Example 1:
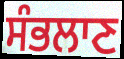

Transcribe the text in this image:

ਸੰਭਲਾਣ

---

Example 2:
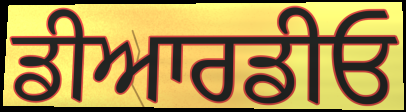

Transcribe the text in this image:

ਡੀਆਰਡੀਓ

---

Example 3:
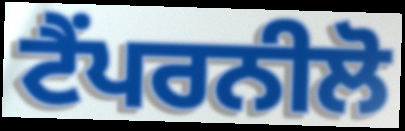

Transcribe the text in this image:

ਟੈਂਪਰਨੀਲੋ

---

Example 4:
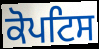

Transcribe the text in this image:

ਕੋਪਟਿਸ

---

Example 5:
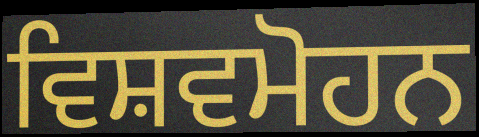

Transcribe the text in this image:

ਵਿਸ਼ਵਮੋਹਨ